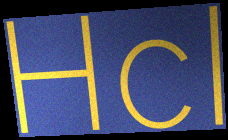
Hcl